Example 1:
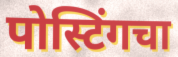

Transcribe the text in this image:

पोस्टिंगचा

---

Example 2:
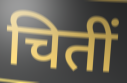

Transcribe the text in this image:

चितीं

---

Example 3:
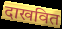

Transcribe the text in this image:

दाखवित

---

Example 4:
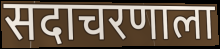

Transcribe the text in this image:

सदाचरणाला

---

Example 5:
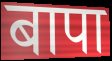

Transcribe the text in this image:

बापा